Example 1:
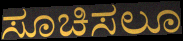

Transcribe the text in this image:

ಸೂಚಿಸಲೂ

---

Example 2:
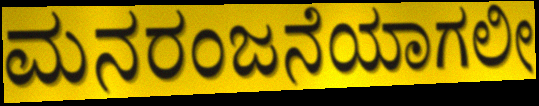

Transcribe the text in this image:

ಮನರಂಜನೆಯಾಗಲೀ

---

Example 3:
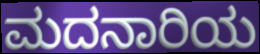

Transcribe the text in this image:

ಮದನಾರಿಯ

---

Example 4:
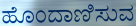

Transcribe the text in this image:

ಹೊಂದಾಣಿಸುವ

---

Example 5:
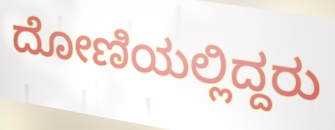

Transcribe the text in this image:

ದೋಣಿಯಲ್ಲಿದ್ದರು